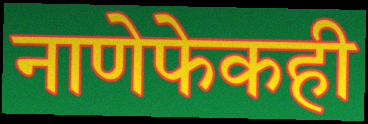
नाणेफेकही